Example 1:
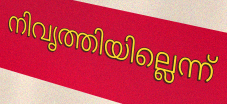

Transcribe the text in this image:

നിവൃത്തിയില്ലെന്ന്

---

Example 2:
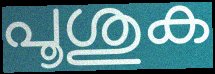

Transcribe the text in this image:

പൂശുക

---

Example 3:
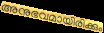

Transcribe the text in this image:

അനുഭവമായിരിക്കും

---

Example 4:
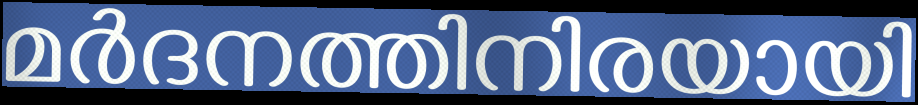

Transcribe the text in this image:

മർദനത്തിനിരയായി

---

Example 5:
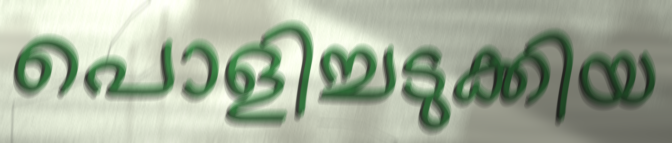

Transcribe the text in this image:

പൊളിച്ചടുക്കിയ